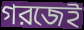
গরজেই